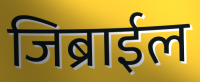
जिब्राईल